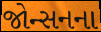
જોન્સનના